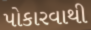
પોકારવાથી